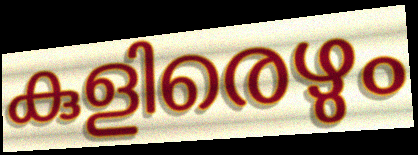
കുളിരെഴും